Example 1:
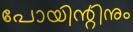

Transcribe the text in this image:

പോയിന്റിനും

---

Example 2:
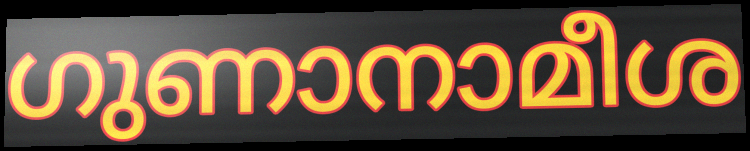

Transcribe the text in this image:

ഗുണാനാമീശ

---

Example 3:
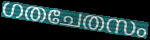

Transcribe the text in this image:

ഗതചേതസം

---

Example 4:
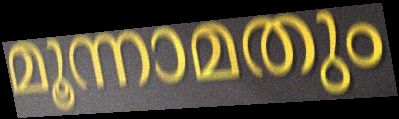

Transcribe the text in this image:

മൂന്നാമതും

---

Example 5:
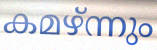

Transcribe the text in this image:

കമഴ്ന്നും